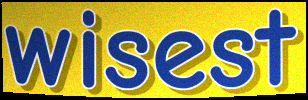
wisest